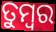
ତୁମ୍ବର